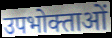
उपभोक्ताओं